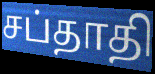
சப்தாதி